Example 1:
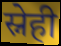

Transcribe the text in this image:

स्नेही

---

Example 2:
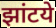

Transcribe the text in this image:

झांटये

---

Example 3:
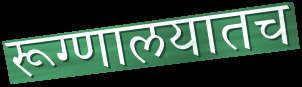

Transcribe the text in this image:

रूग्णालयातच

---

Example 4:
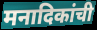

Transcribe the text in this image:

मनादिकांची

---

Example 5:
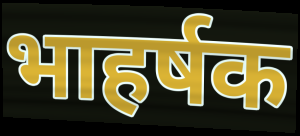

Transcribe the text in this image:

भाहर्षक